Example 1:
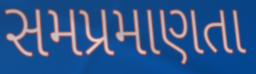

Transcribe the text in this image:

સમપ્રમાણતા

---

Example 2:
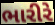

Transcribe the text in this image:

ભારીરે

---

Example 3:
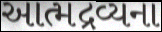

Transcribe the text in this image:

આત્મદ્રવ્યના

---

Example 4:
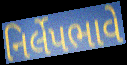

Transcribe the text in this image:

નિર્લેપભાવે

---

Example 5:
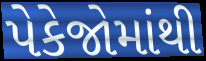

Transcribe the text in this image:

પેકેજોમાંથી